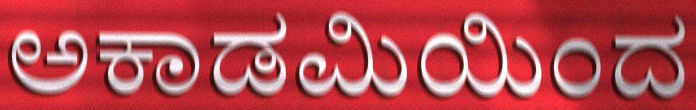
ಅಕಾಡಮಿಯಿಂದ